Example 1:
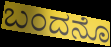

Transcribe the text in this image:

ಬಂದನೊ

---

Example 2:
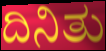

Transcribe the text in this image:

ದಿನಿತು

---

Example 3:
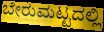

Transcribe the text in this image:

ಬೇರುಮಟ್ಟದಲ್ಲಿ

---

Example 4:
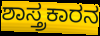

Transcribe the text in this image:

ಶಾಸ್ತ್ರಕಾರನ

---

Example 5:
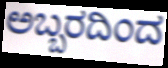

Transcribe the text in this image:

ಅಬ್ಬರದಿಂದ